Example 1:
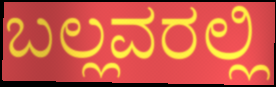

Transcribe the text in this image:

ಬಲ್ಲವರಲ್ಲಿ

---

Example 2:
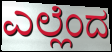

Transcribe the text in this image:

ಎಲ್ಲೆಂದ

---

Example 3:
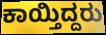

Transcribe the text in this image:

ಕಾಯ್ತಿದ್ದರು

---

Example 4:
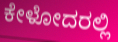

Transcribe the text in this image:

ಕೇಳೋದರಲ್ಲಿ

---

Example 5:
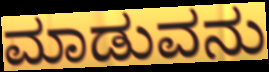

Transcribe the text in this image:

ಮಾಡುವನು